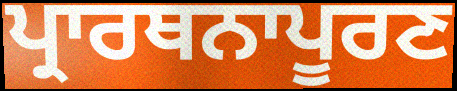
ਪ੍ਰਾਰਥਨਾਪੂਰਣ